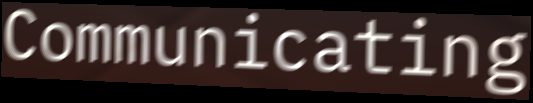
Communicating